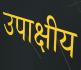
उपाक्षीय